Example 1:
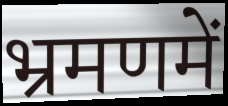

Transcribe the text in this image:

भ्रमणमें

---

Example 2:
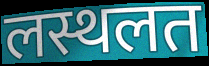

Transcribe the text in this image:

लस्थलत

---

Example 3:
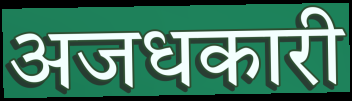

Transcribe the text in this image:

अजधकारी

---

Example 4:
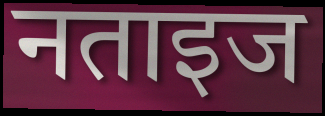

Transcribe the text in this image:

नताइज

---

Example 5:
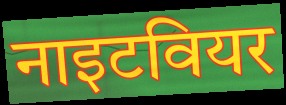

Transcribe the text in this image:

नाइटवियर